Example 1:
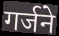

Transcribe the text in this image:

गर्जने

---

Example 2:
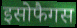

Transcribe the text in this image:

इसोफैगस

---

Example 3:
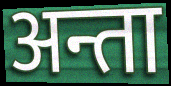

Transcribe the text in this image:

अन्ता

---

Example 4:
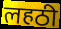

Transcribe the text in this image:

लहठी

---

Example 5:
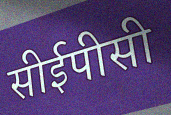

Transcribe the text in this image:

सीईपीसी